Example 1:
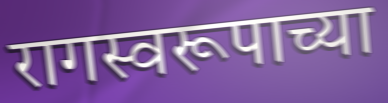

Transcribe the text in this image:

रागस्वरूपाच्या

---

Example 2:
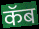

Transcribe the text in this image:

कॅब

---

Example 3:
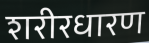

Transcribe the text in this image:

शरीरधारण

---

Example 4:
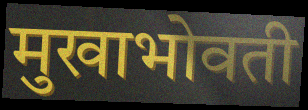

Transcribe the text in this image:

मुखाभोवती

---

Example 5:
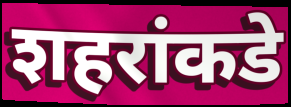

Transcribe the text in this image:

शहरांकडे